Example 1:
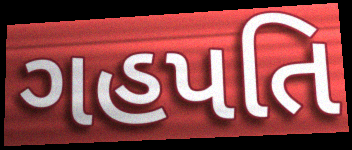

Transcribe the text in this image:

ગહપતિ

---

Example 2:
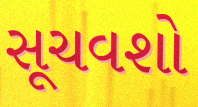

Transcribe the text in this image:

સૂચવશો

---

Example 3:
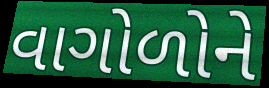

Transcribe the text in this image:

વાગોળોને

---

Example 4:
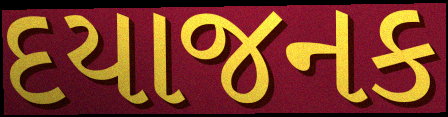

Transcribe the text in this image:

દયાજનક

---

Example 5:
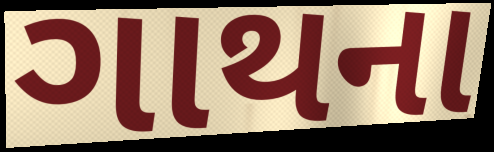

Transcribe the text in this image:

ગાથના